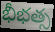
భీభత్స